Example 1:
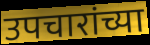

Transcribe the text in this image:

उपचारांच्या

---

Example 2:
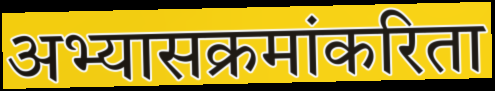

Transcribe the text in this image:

अभ्यासक्रमांकरिता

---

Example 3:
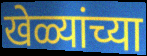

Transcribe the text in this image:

खेळ्यांच्या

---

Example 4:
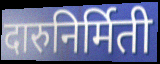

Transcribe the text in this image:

दारुनिर्मिती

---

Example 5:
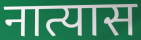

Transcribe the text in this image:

नात्यास